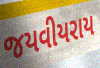
જયવીયરાય